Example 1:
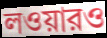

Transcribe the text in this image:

লওয়ারও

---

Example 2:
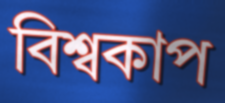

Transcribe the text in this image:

বিশ্বকাপ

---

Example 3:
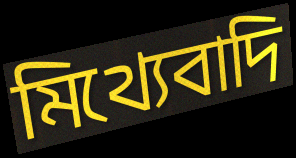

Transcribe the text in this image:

মিথ্যেবাদি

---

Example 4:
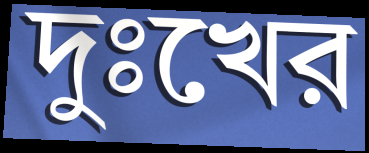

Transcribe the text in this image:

দুঃখের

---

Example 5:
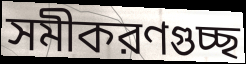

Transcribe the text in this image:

সমীকরণগুচ্ছ